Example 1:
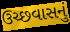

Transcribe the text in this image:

ઉચ્છવાસનું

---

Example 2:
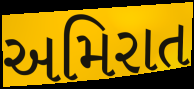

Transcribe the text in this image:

અમિરાત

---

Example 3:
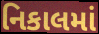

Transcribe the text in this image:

નિકાલમાં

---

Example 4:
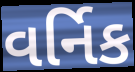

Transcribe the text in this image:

વર્નિક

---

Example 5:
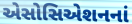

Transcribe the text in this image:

એસોસિએશનનાં